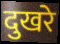
दुखरे